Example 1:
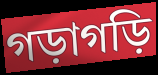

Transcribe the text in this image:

গড়াগড়ি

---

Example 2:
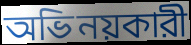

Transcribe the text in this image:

অভিনয়কারী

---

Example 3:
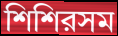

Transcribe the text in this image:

শিশিরসম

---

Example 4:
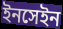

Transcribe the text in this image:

ইনসেইন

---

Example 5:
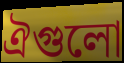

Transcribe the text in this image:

ঐগুলো